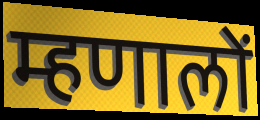
म्हणालों